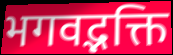
भगवद्भक्ति